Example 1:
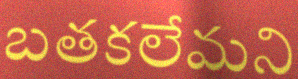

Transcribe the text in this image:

బతకలేమని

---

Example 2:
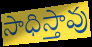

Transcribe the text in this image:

సాధిస్తావు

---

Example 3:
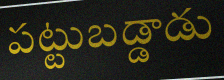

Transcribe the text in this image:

పట్టుబడ్డాడు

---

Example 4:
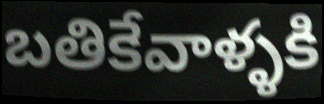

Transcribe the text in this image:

బతికేవాళ్ళకి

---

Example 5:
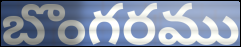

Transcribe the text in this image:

బొంగరము